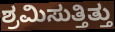
ಶ್ರಮಿಸುತ್ತಿತ್ತು